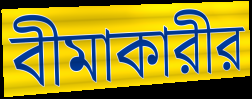
বীমাকারীর